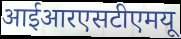
आईआरएसटीएमयू